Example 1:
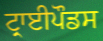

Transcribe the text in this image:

ਟ੍ਰਾਈਪੌਡਸ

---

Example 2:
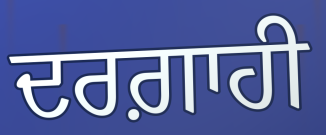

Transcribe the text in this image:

ਦਰਗ਼ਾਹੀ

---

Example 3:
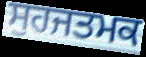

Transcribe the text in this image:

ਸੁਹਜਤਮਕ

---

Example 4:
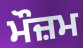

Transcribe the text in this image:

ਮੌਜ਼ਮ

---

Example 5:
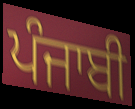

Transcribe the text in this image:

ਪੰਜਾਬੀ